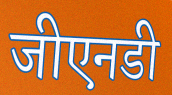
जीएनडी